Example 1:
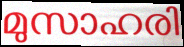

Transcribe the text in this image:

മുസാഹരി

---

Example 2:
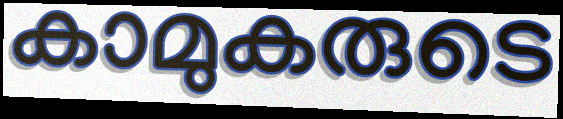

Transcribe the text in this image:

കാമുകരുടെ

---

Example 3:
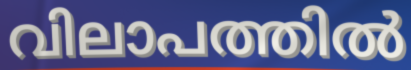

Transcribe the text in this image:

വിലാപത്തിൽ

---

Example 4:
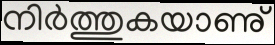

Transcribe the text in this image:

നിർത്തുകയാണു്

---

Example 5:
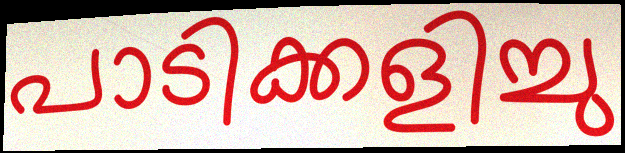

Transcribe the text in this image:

പാടിക്കളിച്ചു